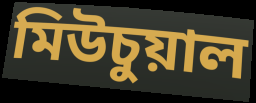
মিউচুয়াল